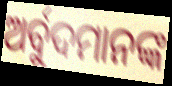
ଅର୍ବୁଦମାନଙ୍କ